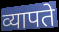
व्यापते